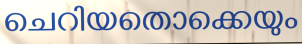
ചെറിയതൊക്കെയും